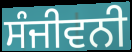
ਸੰਜੀਵਨੀ